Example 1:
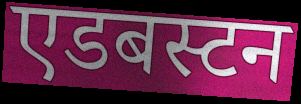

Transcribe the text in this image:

एडबस्टन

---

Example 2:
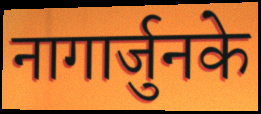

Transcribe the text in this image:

नागार्जुनके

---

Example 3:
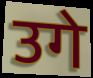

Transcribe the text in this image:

उगे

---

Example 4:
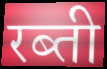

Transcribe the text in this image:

रब्ती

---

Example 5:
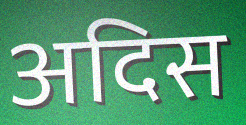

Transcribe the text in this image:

अदिस